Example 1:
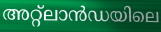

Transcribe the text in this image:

അറ്റ്ലാൻഡയിലെ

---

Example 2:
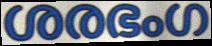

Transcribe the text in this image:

ശരഭംഗ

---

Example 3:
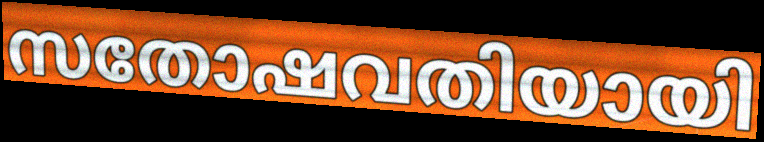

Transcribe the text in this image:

സതോഷവതിയായി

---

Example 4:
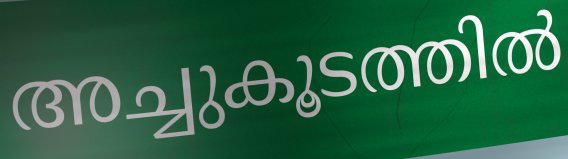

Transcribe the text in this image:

അച്ചുകൂടത്തിൽ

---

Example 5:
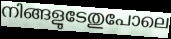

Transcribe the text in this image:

നിങ്ങളുടേതുപോലെ